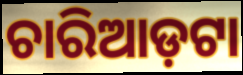
ଚାରିଆଡ଼ଟା